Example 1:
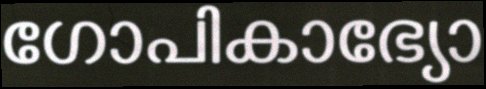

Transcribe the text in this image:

ഗോപികാഭ്യോ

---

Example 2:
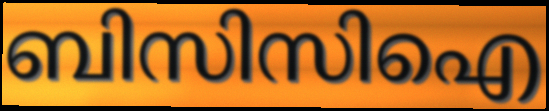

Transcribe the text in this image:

ബിസിസിഐ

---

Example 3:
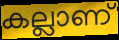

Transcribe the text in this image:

കല്ലാണ്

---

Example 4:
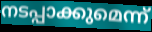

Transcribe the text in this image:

നടപ്പാക്കുമെന്ന്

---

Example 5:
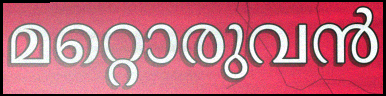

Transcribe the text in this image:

മറ്റൊരുവൻ